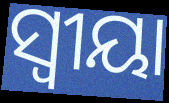
ସ୍ଵୀୟା